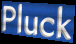
Pluck